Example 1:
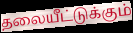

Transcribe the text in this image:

தலையீட்டுக்கும்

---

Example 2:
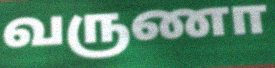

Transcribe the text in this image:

வருணா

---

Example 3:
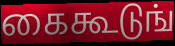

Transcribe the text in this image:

கைகூடுங்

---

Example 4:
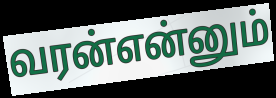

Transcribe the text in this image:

வரன்என்னும்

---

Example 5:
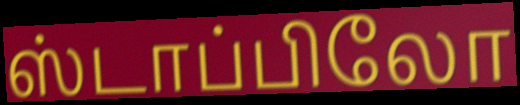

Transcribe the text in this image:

ஸ்டாப்பிலோ